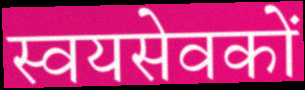
स्वयसेवकों